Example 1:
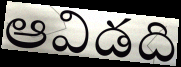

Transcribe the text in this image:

ఆవిడది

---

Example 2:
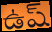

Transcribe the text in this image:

ఉష్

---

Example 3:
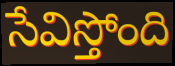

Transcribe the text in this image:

సేవిస్తోంది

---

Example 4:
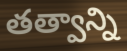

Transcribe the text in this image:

తత్వాన్ని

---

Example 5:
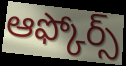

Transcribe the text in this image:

ఆఫ్కోర్స్